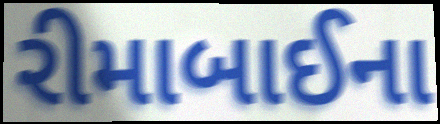
રીમાબાઈના